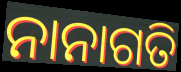
ନାନାଗତି